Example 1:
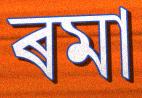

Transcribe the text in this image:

ৰমা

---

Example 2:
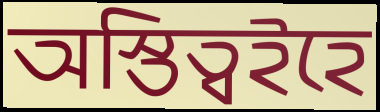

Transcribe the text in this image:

অস্তিত্বইহে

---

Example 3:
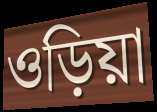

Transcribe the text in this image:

ওড়িয়া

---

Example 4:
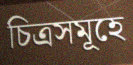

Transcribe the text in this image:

চিত্ৰসমূহে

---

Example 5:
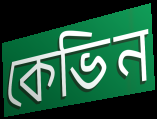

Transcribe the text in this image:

কেভিন